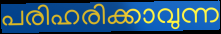
പരിഹരിക്കാവുന്ന